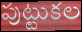
పుట్టుకల